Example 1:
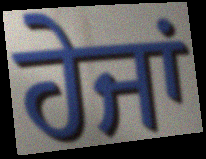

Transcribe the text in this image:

ਹੇਜਾਂ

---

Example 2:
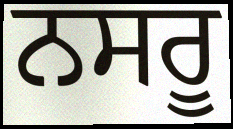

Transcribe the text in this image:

ਨਸਰੂ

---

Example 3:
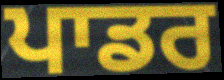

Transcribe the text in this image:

ਪਾਡਰ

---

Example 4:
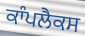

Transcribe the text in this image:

ਕਾੰਪਲੈਕਸ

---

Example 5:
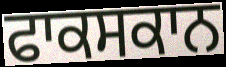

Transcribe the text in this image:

ਫਾਕਸਕਾਨ